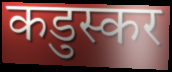
कडुस्कर